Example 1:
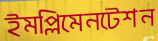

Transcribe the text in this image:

ইমপ্লিমেনটেশন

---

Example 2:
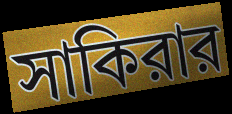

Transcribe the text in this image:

সাকিরার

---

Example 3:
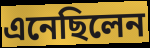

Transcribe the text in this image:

এনেছিলেন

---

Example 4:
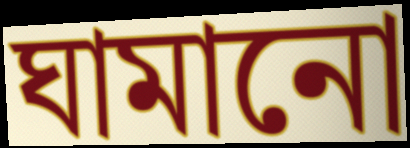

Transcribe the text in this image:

ঘামানো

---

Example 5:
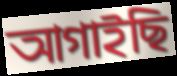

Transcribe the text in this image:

আগাইছি